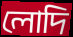
লোদি